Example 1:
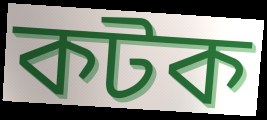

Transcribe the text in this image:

কটক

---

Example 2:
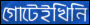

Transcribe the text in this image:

গোটেইখিনি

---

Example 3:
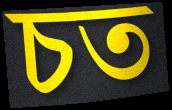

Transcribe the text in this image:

চত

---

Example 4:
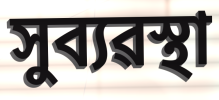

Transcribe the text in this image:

সুব্যৱস্থা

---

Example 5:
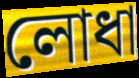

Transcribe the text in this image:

লোধা